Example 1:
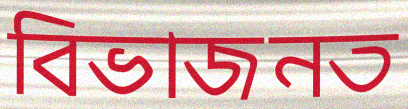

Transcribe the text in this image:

বিভাজনত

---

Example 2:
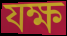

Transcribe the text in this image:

যক্ষ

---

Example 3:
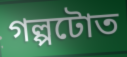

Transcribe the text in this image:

গল্পটোত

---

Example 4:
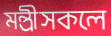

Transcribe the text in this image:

মন্ত্ৰীসকলে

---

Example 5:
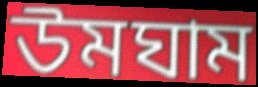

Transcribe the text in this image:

উমঘাম